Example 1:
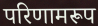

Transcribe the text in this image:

परिणामरूप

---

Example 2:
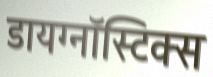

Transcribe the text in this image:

डायग्नॉस्टिक्स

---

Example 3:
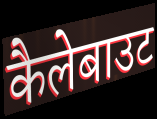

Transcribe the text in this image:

कैलेबाउट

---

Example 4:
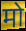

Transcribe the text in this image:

मो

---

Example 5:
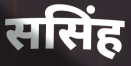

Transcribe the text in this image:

ससिंह